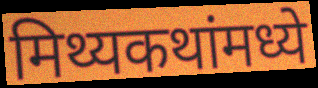
मिथ्यकथांमध्ये